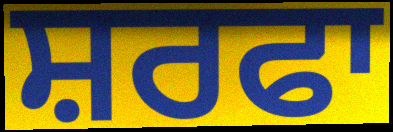
ਸ਼ਰਫਾ